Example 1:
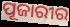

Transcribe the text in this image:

ପୂଜାରୀର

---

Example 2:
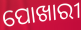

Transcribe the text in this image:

ପୋଖାରୀ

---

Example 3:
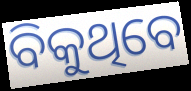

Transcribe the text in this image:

ବିକୁଥିବେ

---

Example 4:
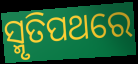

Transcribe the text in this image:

ସ୍ମୃତିପଥରେ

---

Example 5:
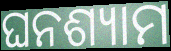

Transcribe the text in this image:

ଘନଶ୍ୟାମ